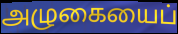
அழுகையைப்